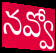
నవ్వో